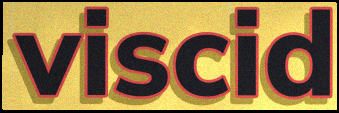
viscid